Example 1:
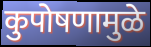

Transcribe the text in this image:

कुपोषणामुळे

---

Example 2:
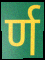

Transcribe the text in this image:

र्ण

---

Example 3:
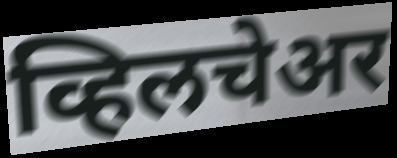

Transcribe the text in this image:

व्हिलचेअर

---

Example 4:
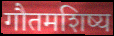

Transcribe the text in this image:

गौतमशिष्य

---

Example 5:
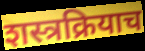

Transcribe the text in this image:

शस्त्रक्रियाच